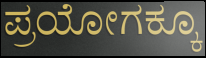
ಪ್ರಯೋಗಕ್ಕೂ